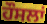
ਹੌਸਲਾਂ